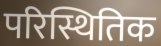
परिस्थितिक